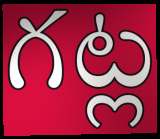
గట్ల